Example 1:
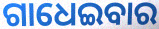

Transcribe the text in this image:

ଗାଧେଇବାର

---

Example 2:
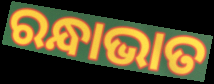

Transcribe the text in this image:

ରନ୍ଧାଭାତ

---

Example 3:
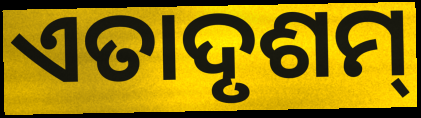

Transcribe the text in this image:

ଏତାଦୃଶମ୍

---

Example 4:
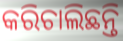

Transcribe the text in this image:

କରିଚାଲିଛନ୍ତି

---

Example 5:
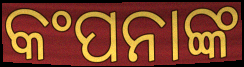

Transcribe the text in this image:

କଂପନାଙ୍କ